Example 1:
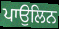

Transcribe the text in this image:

ਪਾਉਲਿਨ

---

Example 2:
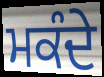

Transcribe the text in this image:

ਮਕੰਦੇ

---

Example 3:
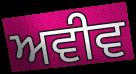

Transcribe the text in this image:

ਅਵੀਵ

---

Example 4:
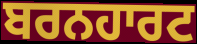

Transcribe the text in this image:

ਬਰਨਹਾਰਟ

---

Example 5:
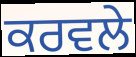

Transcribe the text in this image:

ਕਰਵਲੇ